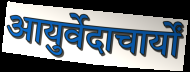
आयुर्वेदाचार्यों